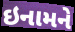
ઇનામને